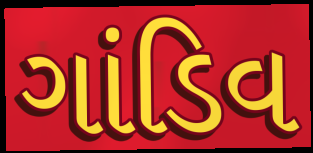
ગાંડિવ